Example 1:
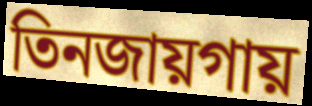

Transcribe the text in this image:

তিনজায়গায়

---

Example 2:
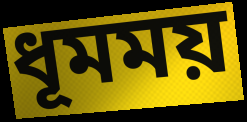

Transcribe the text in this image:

ধূমময়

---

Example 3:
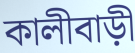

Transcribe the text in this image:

কালীবাড়ী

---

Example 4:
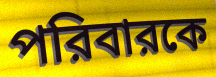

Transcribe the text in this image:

পরিবারকে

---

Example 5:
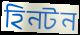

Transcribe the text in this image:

হিনটন